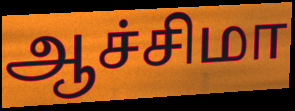
ஆச்சிமா